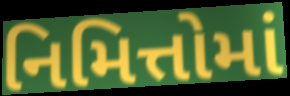
નિમિત્તોમાં